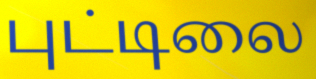
புட்டிலை